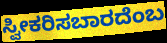
ಸ್ವೀಕರಿಸಬಾರದೆಂಬ